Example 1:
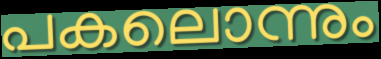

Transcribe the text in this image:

പകലൊന്നും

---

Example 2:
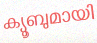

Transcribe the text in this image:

ക്യൂബുമായി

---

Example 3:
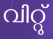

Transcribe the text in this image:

വിറ്റു്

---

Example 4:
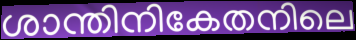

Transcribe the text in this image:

ശാന്തിനികേതനിലെ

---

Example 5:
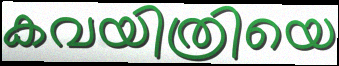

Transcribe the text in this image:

കവയിത്രിയെ